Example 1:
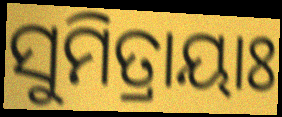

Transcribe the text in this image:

ସୁମିତ୍ରାୟାଃ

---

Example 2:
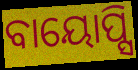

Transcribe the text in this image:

ବାୟୋପ୍ସି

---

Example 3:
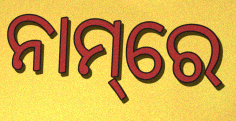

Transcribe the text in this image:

ନାମ୍‌ରେ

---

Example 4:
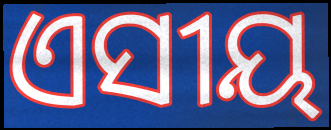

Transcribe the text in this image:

ଏସୀୟ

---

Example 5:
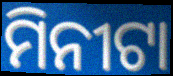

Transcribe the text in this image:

ମିନୀଟା